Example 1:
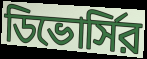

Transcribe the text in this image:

ডিভোর্সির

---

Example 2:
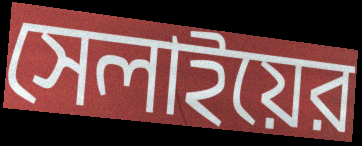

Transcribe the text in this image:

সেলাইয়ের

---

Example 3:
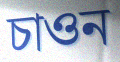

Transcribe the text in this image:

চাওন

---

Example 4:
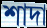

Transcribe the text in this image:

শাদা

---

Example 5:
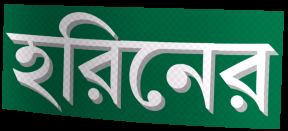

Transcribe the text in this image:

হরিনের